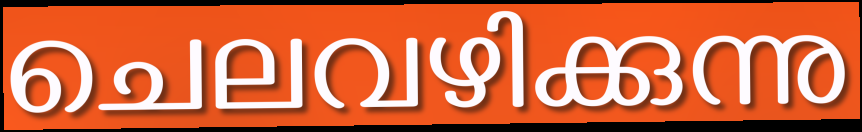
ചെലവഴിക്കുന്നു